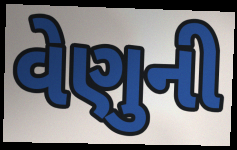
વેણુની